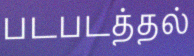
படபடத்தல்